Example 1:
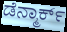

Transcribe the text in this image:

ಡೆನ್ಮಾರ್ಕ್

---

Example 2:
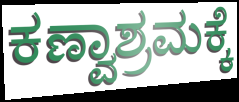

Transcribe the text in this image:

ಕಣ್ವಾಶ್ರಮಕ್ಕೆ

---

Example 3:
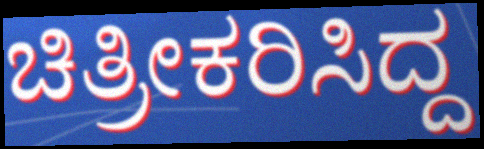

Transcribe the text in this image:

ಚಿತ್ರೀಕರಿಸಿದ್ದ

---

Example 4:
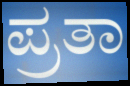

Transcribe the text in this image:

ಪ್ರತಾ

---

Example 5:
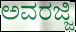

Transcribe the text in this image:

ಅವರಜ್ಜಿ